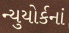
ન્યુયોર્કનાં